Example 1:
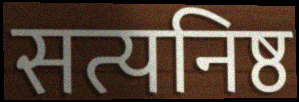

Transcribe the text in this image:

सत्यनिष्ठ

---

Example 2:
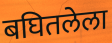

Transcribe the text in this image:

बघितलेला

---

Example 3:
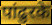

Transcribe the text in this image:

पांढुरके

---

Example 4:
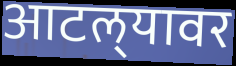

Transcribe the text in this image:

आटल्यावर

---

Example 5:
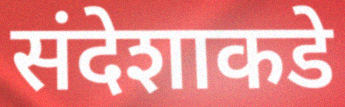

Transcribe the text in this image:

संदेशाकडे